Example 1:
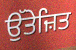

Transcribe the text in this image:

ਉੱਤੇਜ਼ਿਤ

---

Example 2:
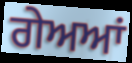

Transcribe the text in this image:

ਗੇਅਆਂ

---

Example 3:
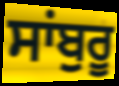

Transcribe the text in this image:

ਸਾਂਬੁਰੂ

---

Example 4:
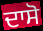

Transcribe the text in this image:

ਦਾਸੋ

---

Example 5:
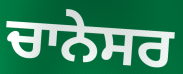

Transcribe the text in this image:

ਚਾਨੇਸਰ